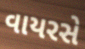
વાયરસે